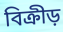
বিক্রীড়